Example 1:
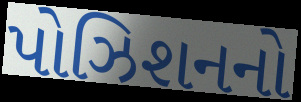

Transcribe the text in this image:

પોઝિશનનો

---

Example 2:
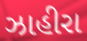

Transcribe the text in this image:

ઝાહીરા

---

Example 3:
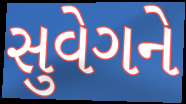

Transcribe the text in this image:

સુવેગને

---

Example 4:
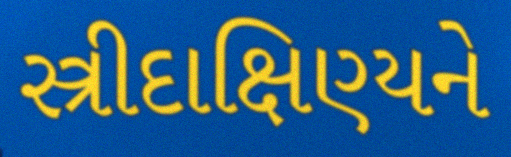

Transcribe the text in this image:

સ્ત્રીદાક્ષિણ્યને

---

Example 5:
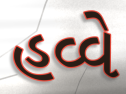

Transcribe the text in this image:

હવ્વે